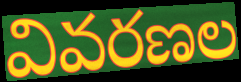
వివరణల